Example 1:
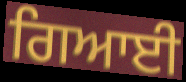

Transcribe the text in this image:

ਗਿਆਈ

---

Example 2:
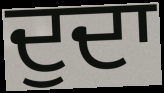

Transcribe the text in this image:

ਦੁਦਾ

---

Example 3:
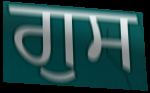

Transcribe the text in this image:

ਗੁਸ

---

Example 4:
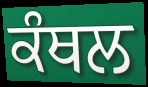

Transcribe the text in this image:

ਕੰਥਲ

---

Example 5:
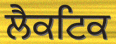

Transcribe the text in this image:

ਲੈਕਟਿਕ